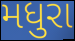
મધુરા